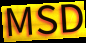
MSD